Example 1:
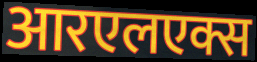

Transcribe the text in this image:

आरएलएक्स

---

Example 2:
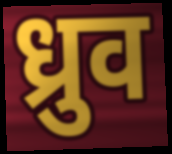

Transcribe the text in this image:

ध्रुव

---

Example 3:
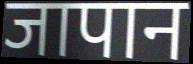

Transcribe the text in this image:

जापान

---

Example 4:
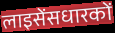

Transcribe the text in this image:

लाइसेंसधारकों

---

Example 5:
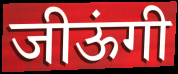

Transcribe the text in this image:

जीऊंगी